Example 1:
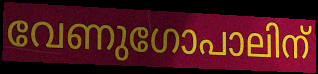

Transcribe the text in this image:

വേണുഗോപാലിന്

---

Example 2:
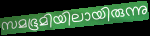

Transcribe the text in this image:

സമഭൂമിയിലായിരുന്നു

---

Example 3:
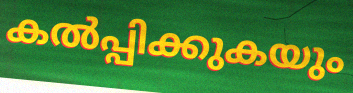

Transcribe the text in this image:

കൽപ്പിക്കുകയും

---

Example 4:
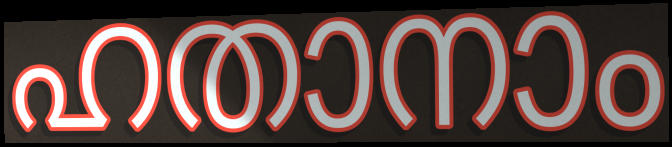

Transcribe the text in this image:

ഹതാനാം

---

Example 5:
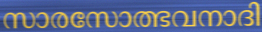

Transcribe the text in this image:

സാരസോത്ഭവനാദി